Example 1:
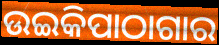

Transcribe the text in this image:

ଉଇକିପାଠାଗାର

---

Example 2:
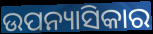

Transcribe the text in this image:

ଉପନ୍ୟାସିକାର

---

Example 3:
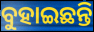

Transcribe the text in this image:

ବୁହାଇଛନ୍ତି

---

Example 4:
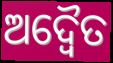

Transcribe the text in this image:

ଅଦ୍ୱୈତ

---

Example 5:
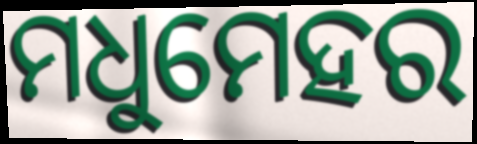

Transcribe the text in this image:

ମଧୁମେହର